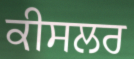
ਕੀਸਲਰ